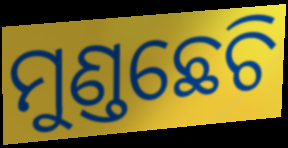
ମୁଣ୍ଡଛେଚି